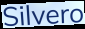
Silvero